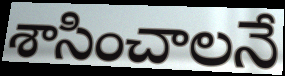
శాసించాలనే